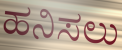
ಹನಿಸಲು